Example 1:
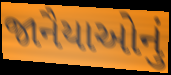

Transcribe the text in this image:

જાનૈયાઓનું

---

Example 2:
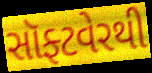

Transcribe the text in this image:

સૉફ્ટવેરથી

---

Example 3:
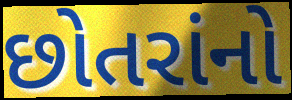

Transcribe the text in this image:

છોતરાંનો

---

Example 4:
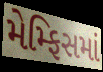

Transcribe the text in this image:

મેમ્ફિસમાં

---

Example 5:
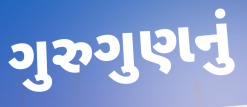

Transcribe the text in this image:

ગુરુગુણનું